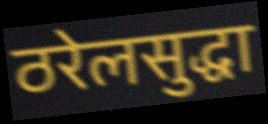
ठरेलसुद्धा